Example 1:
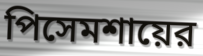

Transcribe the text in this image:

পিসেমশায়ের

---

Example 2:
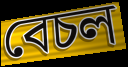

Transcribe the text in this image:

বেচল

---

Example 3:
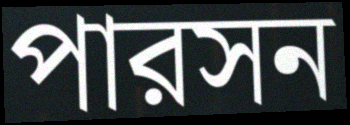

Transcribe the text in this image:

পারসন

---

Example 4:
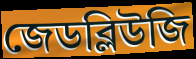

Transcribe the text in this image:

জেডব্লিউজি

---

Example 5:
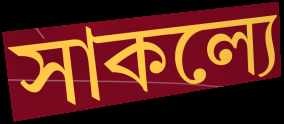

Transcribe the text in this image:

সাকল্যে